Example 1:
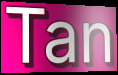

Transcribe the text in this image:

Tan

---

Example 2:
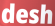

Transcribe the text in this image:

desh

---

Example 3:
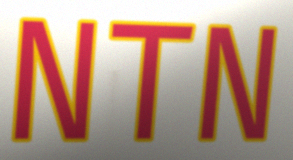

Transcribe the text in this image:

NTN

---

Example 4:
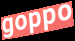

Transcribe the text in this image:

goppo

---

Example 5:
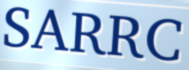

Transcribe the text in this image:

SARRC